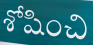
శోషించి